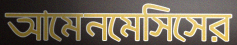
আমেনমেসিসের